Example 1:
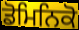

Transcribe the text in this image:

ਡੋਮਿਨਿਕੋ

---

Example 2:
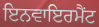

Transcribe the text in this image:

ਇਨਵਾਇਰਮੈਂਟ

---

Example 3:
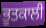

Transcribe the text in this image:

ਭੂਤਕਾਲੀ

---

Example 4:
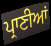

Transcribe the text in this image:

ਪ੍ਰਾਣੀਆਂ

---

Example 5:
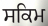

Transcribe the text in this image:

ਸਕਿਮ